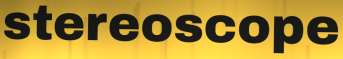
stereoscope